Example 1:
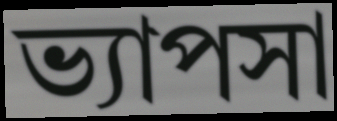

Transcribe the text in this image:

ভ্যাপসা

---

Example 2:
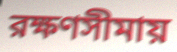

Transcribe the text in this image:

রক্ষণসীমায়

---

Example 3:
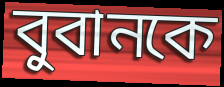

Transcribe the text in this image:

বুবানকে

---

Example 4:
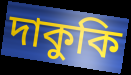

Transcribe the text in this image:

দাকুকি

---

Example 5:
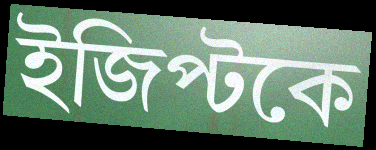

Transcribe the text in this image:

ইজিপ্টকে